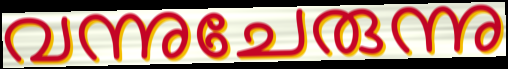
വന്നുചേരുന്നു